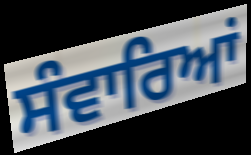
ਸੰਵਾਰਿਆਂ